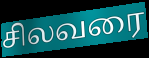
சிலவரை